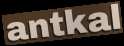
antkal